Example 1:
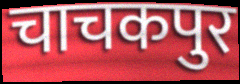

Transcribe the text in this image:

चाचकपुर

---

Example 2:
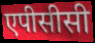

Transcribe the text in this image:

एपीसीसी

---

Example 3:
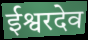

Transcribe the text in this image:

ईश्वरदेव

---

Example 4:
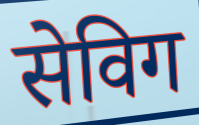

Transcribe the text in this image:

सेविग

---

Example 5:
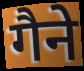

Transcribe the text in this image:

गैने